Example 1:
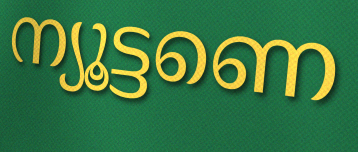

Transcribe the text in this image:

ന്യൂട്ടണെ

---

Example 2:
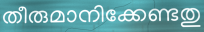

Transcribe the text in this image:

തീരുമാനിക്കേണ്ടതു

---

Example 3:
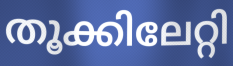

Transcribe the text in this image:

തൂക്കിലേറ്റി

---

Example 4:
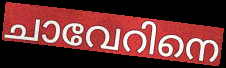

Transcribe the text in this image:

ചാവേറിനെ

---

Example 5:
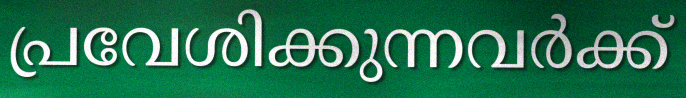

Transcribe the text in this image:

പ്രവേശിക്കുന്നവർക്ക്